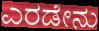
ಎರಡೇನು